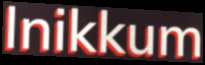
Inikkum